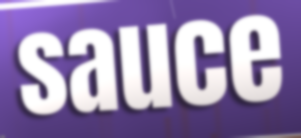
sauce